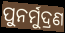
ପୁନର୍ମୁଦ୍ରଣ